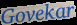
Govekar